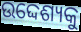
ଉଦ୍ଦେଶ୍ୟକୁ